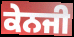
ਕੇਨਜੀ